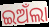
ଇଅଁଲା